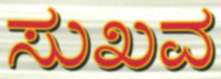
ಸುಖವ